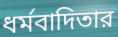
ধর্মবাদিতার